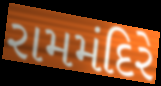
રામમંદિરે